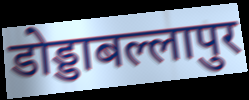
डोड्डाबल्लापुर